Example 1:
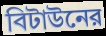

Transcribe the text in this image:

বিটাউনের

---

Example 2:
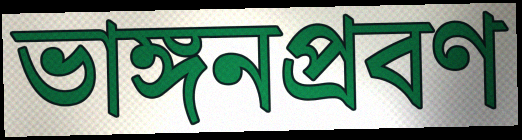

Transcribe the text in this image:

ভাঙ্গনপ্রবণ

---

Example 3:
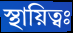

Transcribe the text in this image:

স্থায়িত্বঃ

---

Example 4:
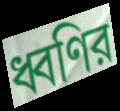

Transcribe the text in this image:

ধ্বণির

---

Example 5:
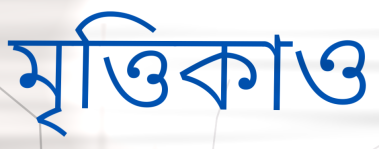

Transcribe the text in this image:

মৃত্তিকাও